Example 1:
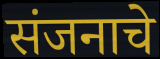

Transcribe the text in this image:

संजनाचे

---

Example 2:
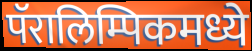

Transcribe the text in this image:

पॅरालिम्पिकमध्ये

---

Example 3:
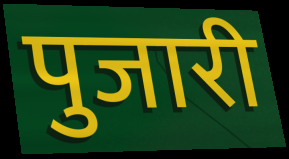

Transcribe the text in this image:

पुजारी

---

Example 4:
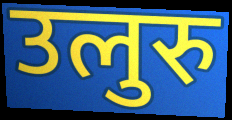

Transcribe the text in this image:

उलुरु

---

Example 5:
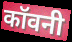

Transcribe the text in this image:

कॉवनी